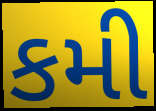
કમી